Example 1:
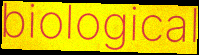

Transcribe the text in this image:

biological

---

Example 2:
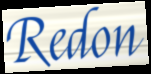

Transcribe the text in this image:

Redon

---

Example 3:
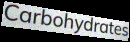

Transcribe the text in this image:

Carbohydrates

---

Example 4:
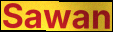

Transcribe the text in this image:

Sawan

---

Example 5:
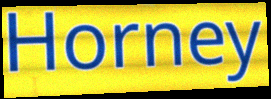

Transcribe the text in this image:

Horney